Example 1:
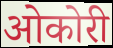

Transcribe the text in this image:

ओकोरी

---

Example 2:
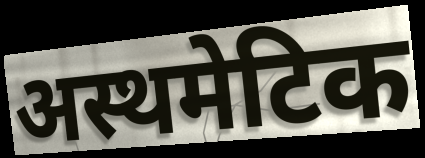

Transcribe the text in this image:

अस्थमेटिक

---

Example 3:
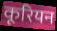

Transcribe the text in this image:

कूरियन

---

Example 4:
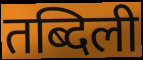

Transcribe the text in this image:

तब्दिली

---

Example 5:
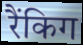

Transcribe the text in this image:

रैंकिग